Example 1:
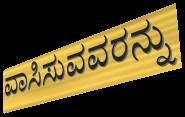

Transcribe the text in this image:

ವಾಸಿಸುವವರನ್ನು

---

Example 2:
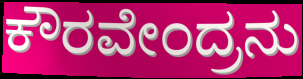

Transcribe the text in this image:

ಕೌರವೇಂದ್ರನು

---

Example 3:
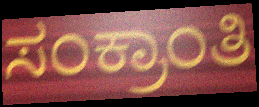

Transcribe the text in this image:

ಸಂಕ್ರಾಂತಿ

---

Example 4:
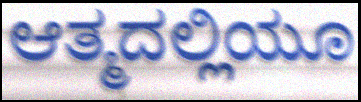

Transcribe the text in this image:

ಆತ್ಮದಲ್ಲಿಯೂ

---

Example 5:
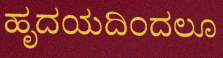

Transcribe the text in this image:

ಹೃದಯದಿಂದಲೂ